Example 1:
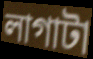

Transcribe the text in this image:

লাগাটা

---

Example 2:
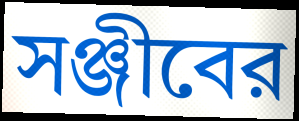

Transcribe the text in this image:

সঞ্জীবের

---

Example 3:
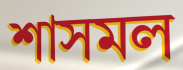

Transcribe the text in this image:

শাসমল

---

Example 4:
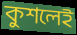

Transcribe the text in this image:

কুশলেই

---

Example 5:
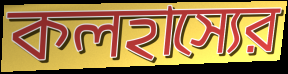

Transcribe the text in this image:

কলহাস্যের